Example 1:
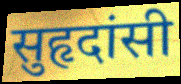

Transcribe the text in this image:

सुहृदांसी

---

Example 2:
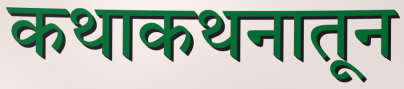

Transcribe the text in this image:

कथाकथनातून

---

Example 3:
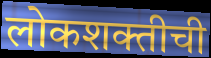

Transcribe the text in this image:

लोकशक्तीची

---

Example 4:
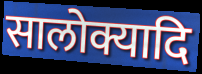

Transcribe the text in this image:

सालोक्यादि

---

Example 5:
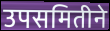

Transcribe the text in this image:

उपसमितीने